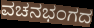
ವಚನಭಂಗದ